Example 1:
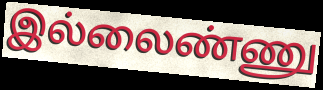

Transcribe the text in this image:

இல்லைண்ணு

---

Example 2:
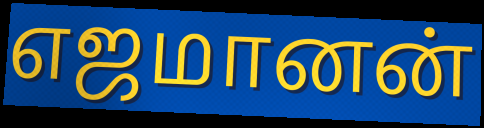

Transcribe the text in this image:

எஜமானன்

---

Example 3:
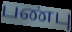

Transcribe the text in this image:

பண்பு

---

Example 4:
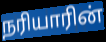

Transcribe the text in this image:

நரியாரின்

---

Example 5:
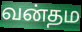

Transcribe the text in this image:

வன்தம